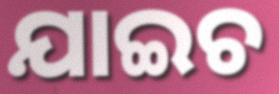
ଯାଇଚ